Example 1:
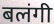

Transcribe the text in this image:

बलंगी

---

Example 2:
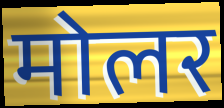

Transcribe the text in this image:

मोलर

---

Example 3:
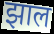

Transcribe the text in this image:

झाल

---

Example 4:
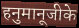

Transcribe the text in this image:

हनुमानूजीके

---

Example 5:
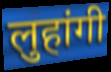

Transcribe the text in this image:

लुहांगी